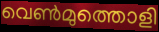
വെൺമുത്തൊളി